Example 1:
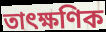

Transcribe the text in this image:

তাৎক্ষণিক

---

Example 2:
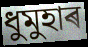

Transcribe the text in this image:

ধুমুহাৰ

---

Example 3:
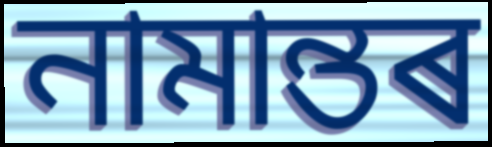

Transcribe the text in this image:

নামান্তৰ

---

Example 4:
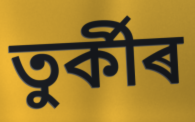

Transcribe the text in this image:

তুৰ্কীৰ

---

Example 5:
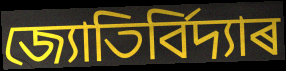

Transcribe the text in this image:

জ্যোতিৰ্বিদ্যাৰ